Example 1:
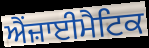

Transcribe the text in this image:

ਐਂਜ਼ਾਈਮੈਟਿਕ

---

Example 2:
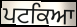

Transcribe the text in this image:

ਪਟਕਿਆ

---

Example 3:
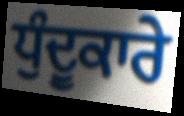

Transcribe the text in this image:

ਧੁੰਦੂਕਾਰੇ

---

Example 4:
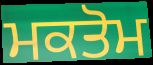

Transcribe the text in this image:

ਮਕਤੋਮ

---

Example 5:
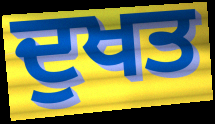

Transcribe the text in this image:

ਦੁਖਤ